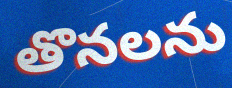
తొనలను